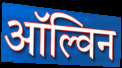
ऑल्विन